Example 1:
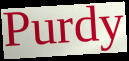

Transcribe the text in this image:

Purdy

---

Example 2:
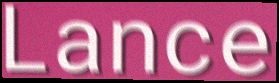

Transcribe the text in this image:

Lance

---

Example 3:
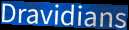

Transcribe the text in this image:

Dravidians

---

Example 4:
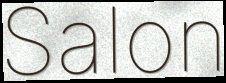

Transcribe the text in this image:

Salon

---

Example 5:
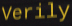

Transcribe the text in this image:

Verily